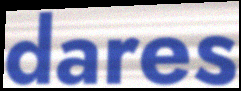
dares